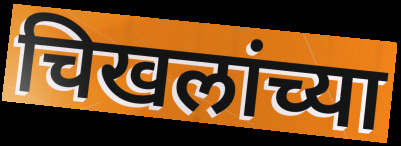
चिखलांच्या